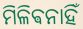
ମିଳିଵନାହିଁ